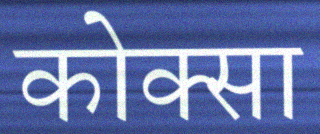
कोक्सा